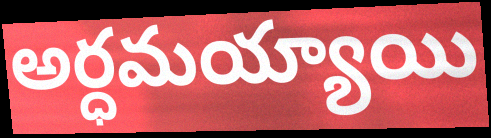
అర్ధమయ్యాయి